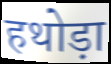
हथोड़ा